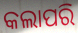
କଲାପରି